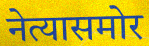
नेत्यासमोर